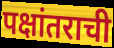
पक्षांतराची